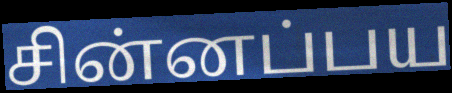
சின்னப்பய